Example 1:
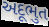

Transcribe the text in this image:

અદૂભુત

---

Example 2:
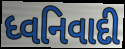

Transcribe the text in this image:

ધ્વનિવાદી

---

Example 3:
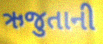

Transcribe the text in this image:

ઋજુતાની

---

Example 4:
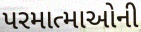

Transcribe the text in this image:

પરમાત્માઓની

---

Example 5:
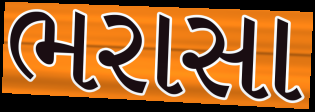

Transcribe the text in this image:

ભરાસા